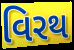
વિરથ